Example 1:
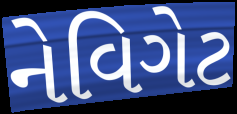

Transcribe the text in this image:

નેવિગેટ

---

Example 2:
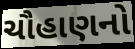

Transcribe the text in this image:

ચૌહાણનો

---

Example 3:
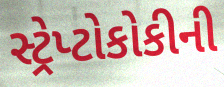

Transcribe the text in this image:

સ્ટ્રેપ્ટોકોકીની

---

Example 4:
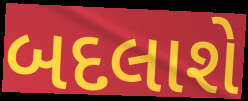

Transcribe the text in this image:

બદલાશે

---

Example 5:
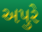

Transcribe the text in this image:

અપુરે